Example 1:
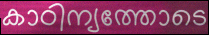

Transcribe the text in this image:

കാഠിന്യത്തോടെ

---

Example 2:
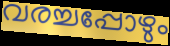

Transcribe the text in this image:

വരച്ചപ്പോഴും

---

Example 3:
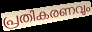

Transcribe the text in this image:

പ്രതികരണവും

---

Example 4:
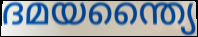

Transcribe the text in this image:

ദമയന്ത്യൈ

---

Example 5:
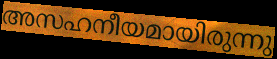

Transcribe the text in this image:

അസഹനീയമായിരുന്നു